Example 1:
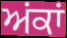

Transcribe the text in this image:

ਅਂਕਾਂ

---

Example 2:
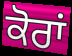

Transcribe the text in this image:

ਕੋਰਾਂ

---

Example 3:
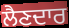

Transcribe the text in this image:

ਲੈਣਦਾਰ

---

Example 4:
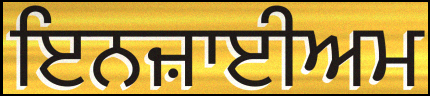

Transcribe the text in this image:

ਇਨਜ਼ਾਈਅਮ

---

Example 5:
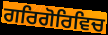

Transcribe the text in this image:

ਗਰਿਗੋਰਿਵਿਚ